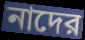
নাদের